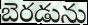
బెరడును